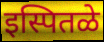
इस्पितळे